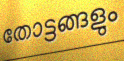
തോട്ടങ്ങളും